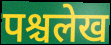
पश्चलेख